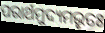
ପରାର୍ଥମୁଦ୍ୟମଭୃତଃ